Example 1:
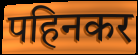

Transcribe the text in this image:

पहिनकर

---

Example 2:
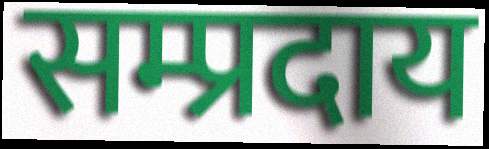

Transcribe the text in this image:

सम्प्रदाय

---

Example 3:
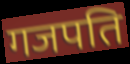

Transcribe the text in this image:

गजपति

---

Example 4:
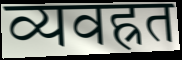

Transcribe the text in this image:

व्यवह्रत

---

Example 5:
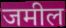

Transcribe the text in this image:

जमील